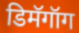
डिमॅगॉग